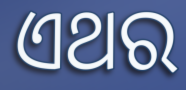
ଏଥର